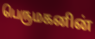
பெருமகனின்